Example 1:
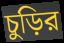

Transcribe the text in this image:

চুড়ির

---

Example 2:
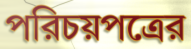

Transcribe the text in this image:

পরিচয়পত্রের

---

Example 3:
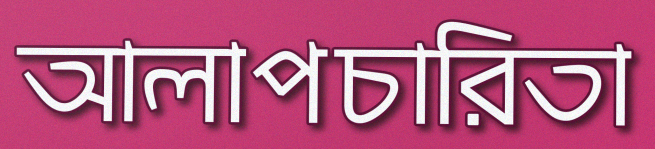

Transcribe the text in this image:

আলাপচারিতা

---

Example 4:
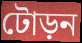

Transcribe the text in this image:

টোড়ন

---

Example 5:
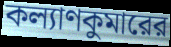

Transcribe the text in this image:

কল্যাণকুমারের